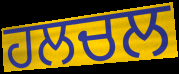
ਹਲਚਲ